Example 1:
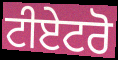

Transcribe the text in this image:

ਟੀਏਟਰੋ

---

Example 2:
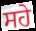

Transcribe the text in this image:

ਸਹੇ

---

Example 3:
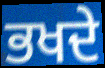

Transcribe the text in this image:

ਭਖਦੇ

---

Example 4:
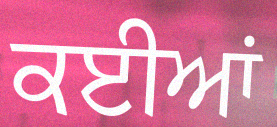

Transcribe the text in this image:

ਕਈਆਂ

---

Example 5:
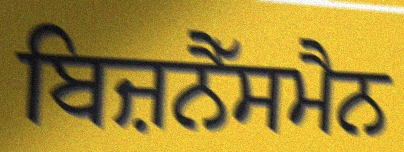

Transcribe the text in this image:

ਬਿਜ਼ਨੈੱਸਮੈਨ